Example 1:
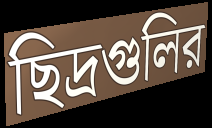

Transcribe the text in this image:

ছিদ্রগুলির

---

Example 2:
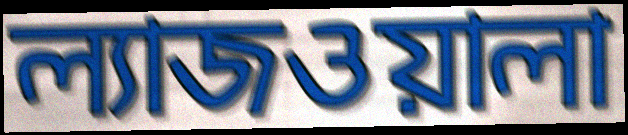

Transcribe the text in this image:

ল্যাজওয়ালা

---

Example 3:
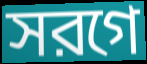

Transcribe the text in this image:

সরগে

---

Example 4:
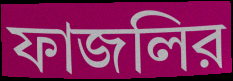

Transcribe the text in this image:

ফাজলির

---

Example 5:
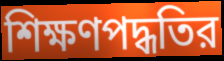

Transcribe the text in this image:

শিক্ষণপদ্ধতির